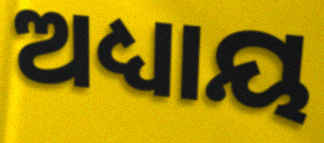
ଅଧ୍ୟାୟ